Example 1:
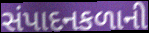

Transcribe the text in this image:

સંપાદનકળાની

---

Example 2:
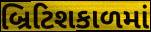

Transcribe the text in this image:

બ્રિટિશકાળમાં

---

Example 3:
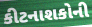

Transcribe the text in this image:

કીટનાશકોની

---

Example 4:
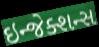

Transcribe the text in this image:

ઇન્જેક્શન્સ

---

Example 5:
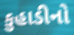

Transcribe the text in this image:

કુહાડીનો